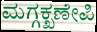
ಮಗ್ಗಕ್ಖಣೇಪಿ